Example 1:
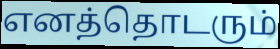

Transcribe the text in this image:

எனத்தொடரும்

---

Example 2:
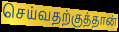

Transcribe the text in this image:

செய்வதற்குத்தான்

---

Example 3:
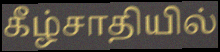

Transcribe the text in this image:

கீழ்சாதியில்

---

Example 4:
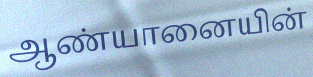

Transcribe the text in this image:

ஆண்யானையின்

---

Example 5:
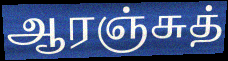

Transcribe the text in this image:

ஆரஞ்சுத்